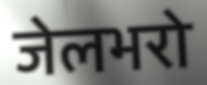
जेलभरो